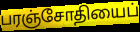
பரஞ்சோதியைப்